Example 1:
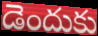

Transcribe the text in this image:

డెందుకు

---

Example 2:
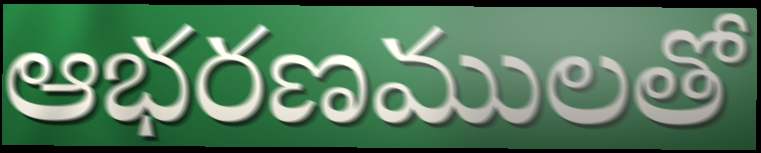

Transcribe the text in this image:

ఆభరణములతో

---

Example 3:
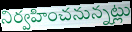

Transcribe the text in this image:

నిర్వహించనున్నట్లు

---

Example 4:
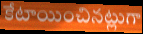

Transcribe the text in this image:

కేటాయించినట్లుగా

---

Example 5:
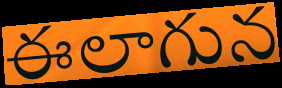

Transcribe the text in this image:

ఈలాగున